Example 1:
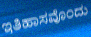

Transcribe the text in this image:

ಇತಿಹಾಸವೊಂದು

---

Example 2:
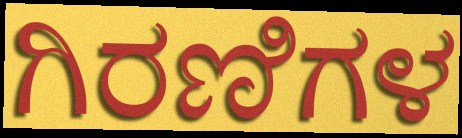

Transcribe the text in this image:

ಗಿರಣಿಗಳ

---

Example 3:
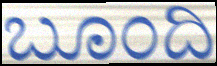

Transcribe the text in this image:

ಬೂಂದಿ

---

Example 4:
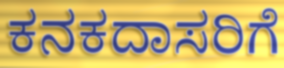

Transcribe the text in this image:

ಕನಕದಾಸರಿಗೆ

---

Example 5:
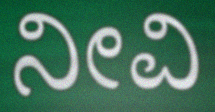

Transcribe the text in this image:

ನೀವಿ